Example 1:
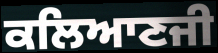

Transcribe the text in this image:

ਕਲਿਆਣਜੀ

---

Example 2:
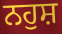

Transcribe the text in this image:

ਨਹੁਸ਼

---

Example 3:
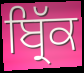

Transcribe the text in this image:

ਬ੍ਰਿੱਕ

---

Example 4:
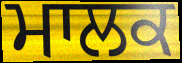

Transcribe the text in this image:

ਮਾਲਕ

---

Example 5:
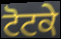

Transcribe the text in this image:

ਟੋਟਕੇ